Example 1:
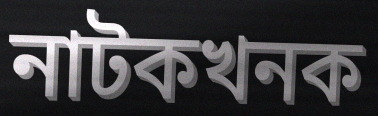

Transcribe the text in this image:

নাটকখনক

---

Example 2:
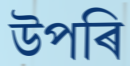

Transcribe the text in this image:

উপৰি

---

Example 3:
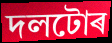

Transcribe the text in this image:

দলটোৰ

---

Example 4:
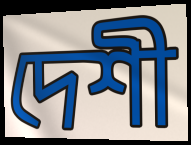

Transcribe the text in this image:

দেশী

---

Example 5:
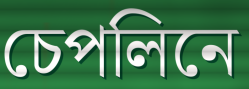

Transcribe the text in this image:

চেপলিনে